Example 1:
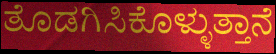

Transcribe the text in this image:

ತೊಡಗಿಸಿಕೊಳ್ಳುತ್ತಾನೆ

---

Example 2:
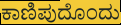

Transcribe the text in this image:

ಕಾಣಿಪುದೊಂದು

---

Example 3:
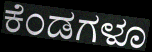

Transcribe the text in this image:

ಕೆಂಡಗಳೂ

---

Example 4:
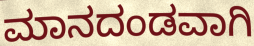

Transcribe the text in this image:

ಮಾನದಂಡವಾಗಿ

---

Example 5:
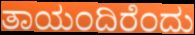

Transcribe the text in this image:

ತಾಯಂದಿರೆಂದು